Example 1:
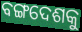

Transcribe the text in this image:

ବଙ୍ଗଦେଶକୁ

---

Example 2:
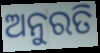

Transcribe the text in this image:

ଅନୁରତି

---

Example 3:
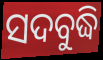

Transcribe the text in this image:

ସଦବୁଦ୍ଧି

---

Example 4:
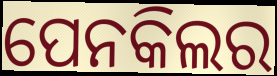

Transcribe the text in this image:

ପେନକିଲର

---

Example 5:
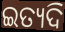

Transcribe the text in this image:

ଇତ୍ୟଦି